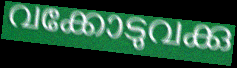
വക്കോടുവക്കു